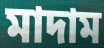
মাদাম